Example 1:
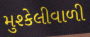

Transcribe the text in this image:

મુશ્કેલીવાળી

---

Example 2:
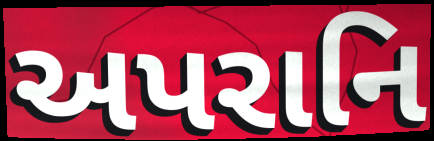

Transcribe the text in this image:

અપરાનિ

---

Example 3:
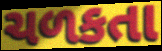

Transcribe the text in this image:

ચળકતા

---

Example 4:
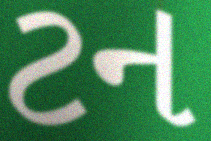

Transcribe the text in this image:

ટન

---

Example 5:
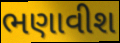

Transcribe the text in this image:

ભણાવીશ